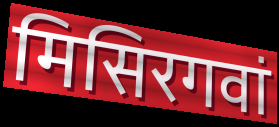
मिसिरगवां